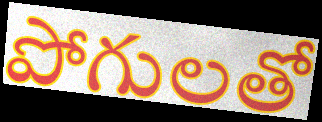
పోగులతో